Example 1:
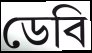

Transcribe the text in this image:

ডেবি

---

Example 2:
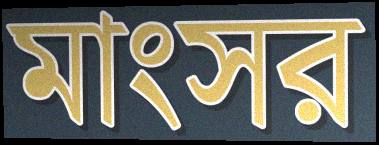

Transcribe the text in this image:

মাংসর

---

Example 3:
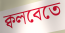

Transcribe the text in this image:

ক্বলবেতে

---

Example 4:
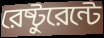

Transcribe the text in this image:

রেষ্টুরেন্টে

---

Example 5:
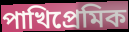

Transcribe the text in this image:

পাখিপ্রেমিক